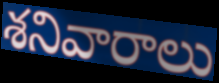
శనివారాలు